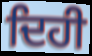
ਦਿਹੀ